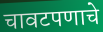
चावटपणाचे